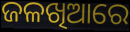
ଜଳଖିଆରେ